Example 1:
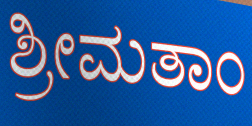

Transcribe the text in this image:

ಶ್ರೀಮತಾಂ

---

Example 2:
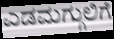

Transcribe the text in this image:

ಎಡಮಗ್ಗುಲಿಗೆ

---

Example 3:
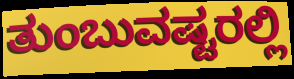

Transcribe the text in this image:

ತುಂಬುವಷ್ಟರಲ್ಲಿ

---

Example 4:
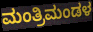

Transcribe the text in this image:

ಮಂತ್ರಿಮಂಡಳ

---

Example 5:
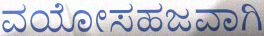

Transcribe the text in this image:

ವಯೋಸಹಜವಾಗಿ